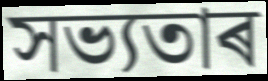
সভ্যতাৰ